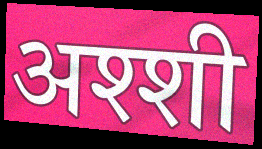
अश्शी